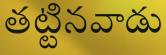
తట్టినవాడు